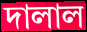
দালাল